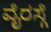
ವೈರಸ್ಗೆ